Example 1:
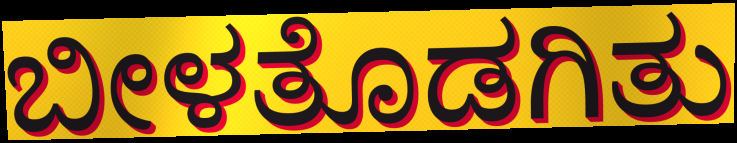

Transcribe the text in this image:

ಬೀಳತೊಡಗಿತು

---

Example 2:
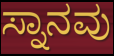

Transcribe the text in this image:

ಸ್ನಾನವು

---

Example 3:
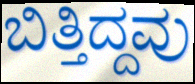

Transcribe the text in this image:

ಬಿತ್ತಿದ್ದವು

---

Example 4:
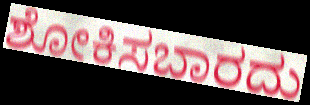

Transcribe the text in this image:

ಶೋಕಿಸಬಾರದು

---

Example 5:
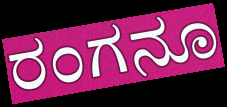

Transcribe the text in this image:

ರಂಗನೂ